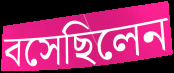
বসেছিলেন